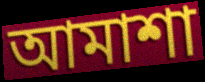
আমাশা